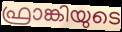
ഫ്രാങ്കിയുടെ